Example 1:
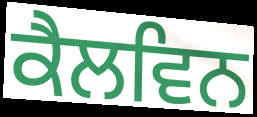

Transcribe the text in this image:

ਕੈਲਵਿਨ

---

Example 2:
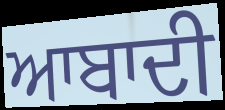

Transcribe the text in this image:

ਆਬਾਦੀ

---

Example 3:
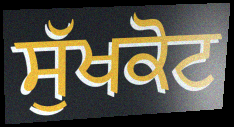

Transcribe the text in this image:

ਸੁੱਖਕੋਟ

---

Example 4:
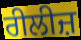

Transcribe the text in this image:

ਰੀਲੀਜ਼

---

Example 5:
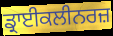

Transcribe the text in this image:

ਡ੍ਰਾਈਕਲੀਨਰਜ਼